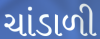
ચાંડાળી